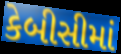
કેબીસીમાં